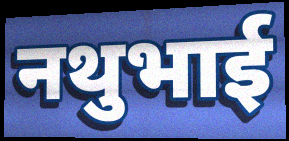
नथुभाई